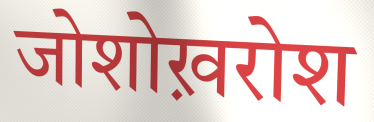
जोशोख़रोश